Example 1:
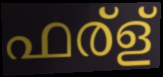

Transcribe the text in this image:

ഫര്ള്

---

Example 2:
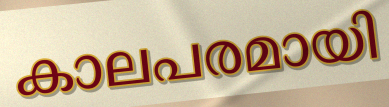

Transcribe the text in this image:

കാലപരമായി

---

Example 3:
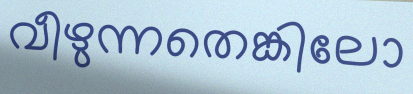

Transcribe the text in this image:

വീഴുന്നതെങ്കിലോ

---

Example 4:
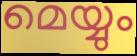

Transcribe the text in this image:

മെയ്യും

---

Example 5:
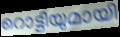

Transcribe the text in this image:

റൊട്ടിയുമായി